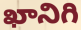
ఖానిగి